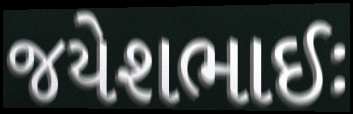
જયેશભાઈઃ